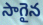
సాగైన